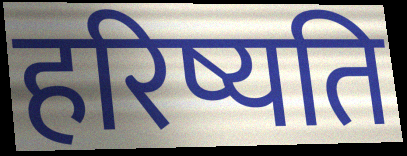
हरिष्यति